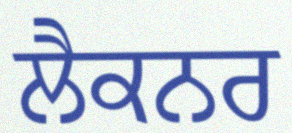
ਲੈਕਨਰ